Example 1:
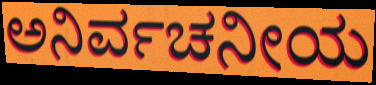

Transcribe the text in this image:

ಅನಿರ್ವಚನೀಯ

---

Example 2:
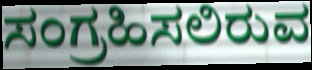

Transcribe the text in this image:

ಸಂಗ್ರಹಿಸಲಿರುವ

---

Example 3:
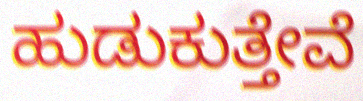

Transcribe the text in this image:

ಹುಡುಕುತ್ತೇವೆ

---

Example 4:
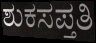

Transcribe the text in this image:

ಶುಕಸಪ್ತತಿ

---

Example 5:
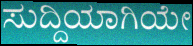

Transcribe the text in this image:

ಸುದ್ದಿಯಾಗಿಯೇ